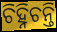
ଚିହ୍ନିଚନ୍ତି